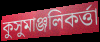
কুসুমাঞ্জলিকর্ত্তা